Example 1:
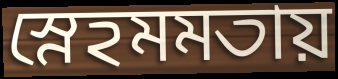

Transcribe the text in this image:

স্নেহমমতায়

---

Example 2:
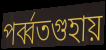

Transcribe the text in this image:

পর্ব্বতগুহায়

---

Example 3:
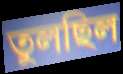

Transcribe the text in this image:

তুলছিল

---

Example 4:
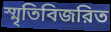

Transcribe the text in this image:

স্মৃতিবিজরিত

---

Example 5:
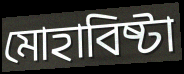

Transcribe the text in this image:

মোহাবিষ্টা